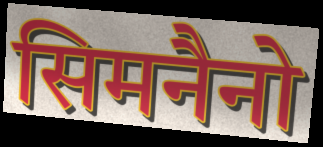
सिमनैनो